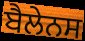
ਬੈਲੇਨਸ